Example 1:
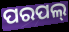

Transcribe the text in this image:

ପରପଲ୍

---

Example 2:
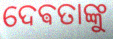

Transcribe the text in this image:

ଦେଵତାଙ୍କୁ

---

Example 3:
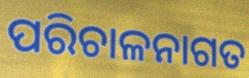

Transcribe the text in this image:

ପରିଚାଳନାଗତ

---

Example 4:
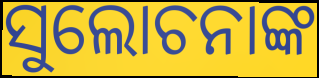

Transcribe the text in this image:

ସୁଲୋଚନାଙ୍କ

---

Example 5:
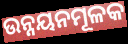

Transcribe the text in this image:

ଉନ୍ନୟନମୂଳକ